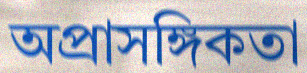
অপ্রাসঙ্গিকতা